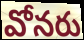
వోనరు